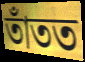
তাঁতত